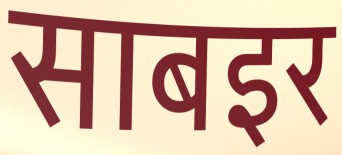
साबइर